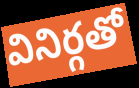
వినిర్గతో